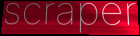
scraper